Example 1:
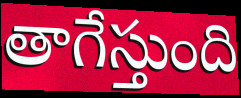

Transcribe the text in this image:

తాగేస్తుంది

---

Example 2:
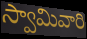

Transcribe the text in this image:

స్వామివారి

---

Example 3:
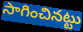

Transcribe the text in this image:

సాగించినట్టు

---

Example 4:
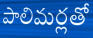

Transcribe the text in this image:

పాలిమర్లతో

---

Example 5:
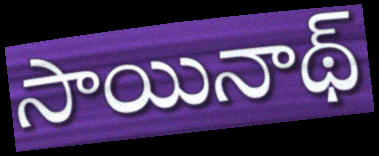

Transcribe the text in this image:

సాయినాథ్